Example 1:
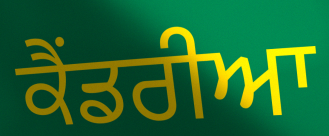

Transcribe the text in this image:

ਕੈਂਡਰੀਆ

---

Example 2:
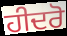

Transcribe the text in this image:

ਹੀਦਰੋ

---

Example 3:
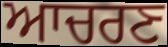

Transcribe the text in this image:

ਆਚਰਣ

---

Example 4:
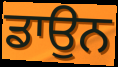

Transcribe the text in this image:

ਡਾਉਨ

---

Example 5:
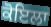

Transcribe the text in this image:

ਕੋਇਲਾ